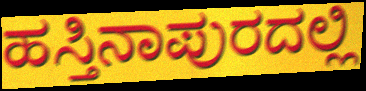
ಹಸ್ತಿನಾಪುರದಲ್ಲಿ